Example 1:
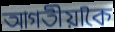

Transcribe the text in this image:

আগতীয়াকৈ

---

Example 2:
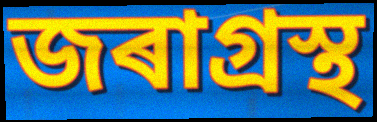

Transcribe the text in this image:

জৰাগ্ৰস্থ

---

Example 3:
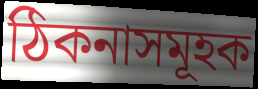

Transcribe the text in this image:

ঠিকনাসমূহক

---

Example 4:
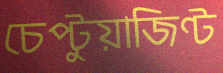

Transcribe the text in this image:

চেপ্টুয়াজিণ্ট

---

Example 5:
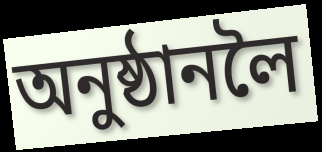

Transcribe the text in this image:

অনুষ্ঠানলৈ